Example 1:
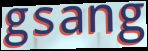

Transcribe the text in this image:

gsang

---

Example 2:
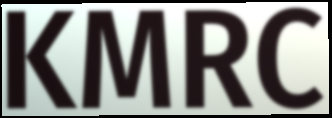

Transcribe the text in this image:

KMRC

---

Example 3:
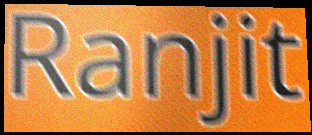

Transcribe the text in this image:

Ranjit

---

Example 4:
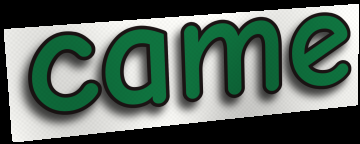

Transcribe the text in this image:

came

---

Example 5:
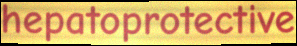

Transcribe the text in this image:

hepatoprotective